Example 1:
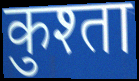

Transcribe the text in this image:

कुश्ता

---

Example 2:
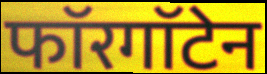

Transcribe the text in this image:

फॉरगॉटेन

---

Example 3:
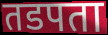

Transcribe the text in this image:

तडपता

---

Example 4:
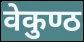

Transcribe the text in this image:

वेकुण्ठ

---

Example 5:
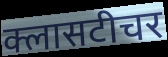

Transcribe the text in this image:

क्लासटीचर